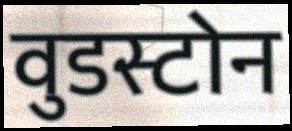
वुडस्टोन